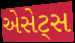
એસેટ્સ